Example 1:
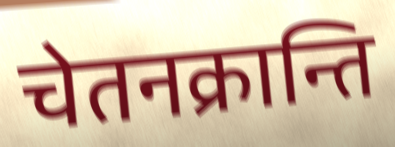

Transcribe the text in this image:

चेतनक्रान्ति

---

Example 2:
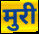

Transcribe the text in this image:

मुरी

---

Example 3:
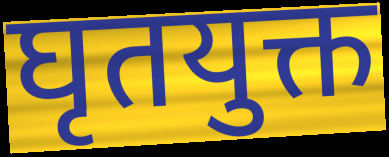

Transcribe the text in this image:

घृतयुक्त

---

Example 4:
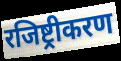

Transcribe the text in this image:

रजिष्ट्रीकरण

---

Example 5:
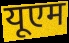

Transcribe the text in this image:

यूएम